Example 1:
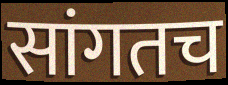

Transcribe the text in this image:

सांगतच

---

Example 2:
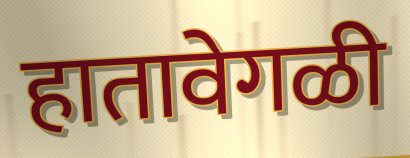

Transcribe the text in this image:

हातावेगळी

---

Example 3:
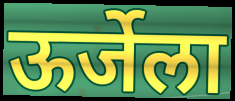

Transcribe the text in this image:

ऊर्जेला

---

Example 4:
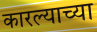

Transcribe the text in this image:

कारल्याच्या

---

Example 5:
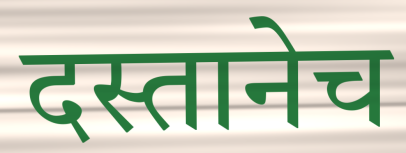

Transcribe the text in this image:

दस्तानेच